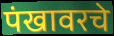
पंखावरचे